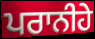
ਪਰਾਨੀਹੇ